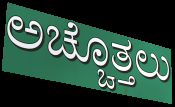
ಅಚ್ಚೊತ್ತಲು